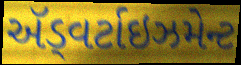
ઍડ્વર્ટાઇઝમેન્ટ